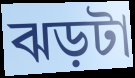
ঝড়টা